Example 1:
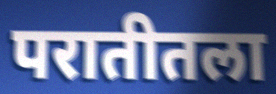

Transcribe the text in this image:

परातीतला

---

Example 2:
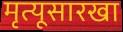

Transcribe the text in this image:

मृत्यूसारखा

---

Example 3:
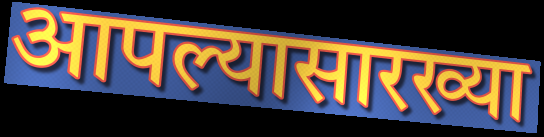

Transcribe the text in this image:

आपल्यासारख्या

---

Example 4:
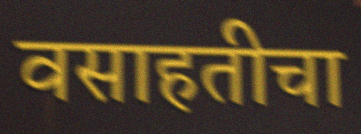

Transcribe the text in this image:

वसाहतीचा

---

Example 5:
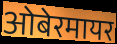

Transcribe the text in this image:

ओबेरमायर